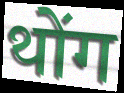
थोंग